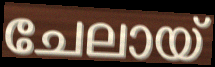
ചേലായ്